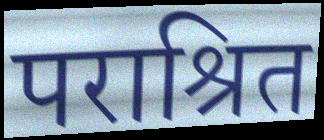
पराश्रित